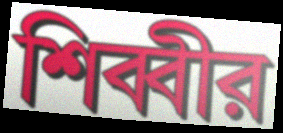
শিব্বীর